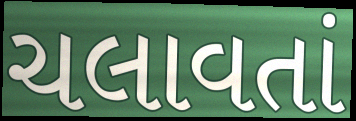
ચલાવતાં